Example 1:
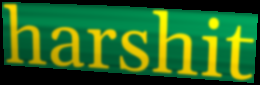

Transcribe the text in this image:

harshit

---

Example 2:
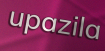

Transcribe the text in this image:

upazila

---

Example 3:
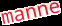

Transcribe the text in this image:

manne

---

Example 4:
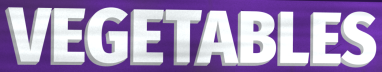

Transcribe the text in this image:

VEGETABLES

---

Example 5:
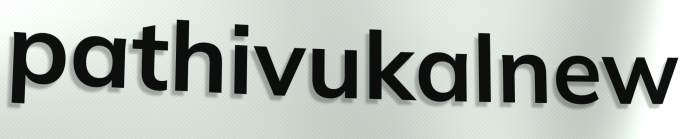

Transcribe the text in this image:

pathivukalnew